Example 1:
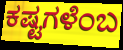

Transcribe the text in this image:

ಕಷ್ಟಗಳೆಂಬ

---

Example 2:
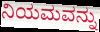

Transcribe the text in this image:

ನಿಯಮವನ್ನು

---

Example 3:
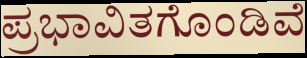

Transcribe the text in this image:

ಪ್ರಭಾವಿತಗೊಂಡಿವೆ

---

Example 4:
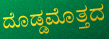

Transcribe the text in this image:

ದೊಡ್ಡಮೊತ್ತದ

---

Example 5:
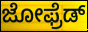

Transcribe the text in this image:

ಜೋಫ್ರೆಡ್